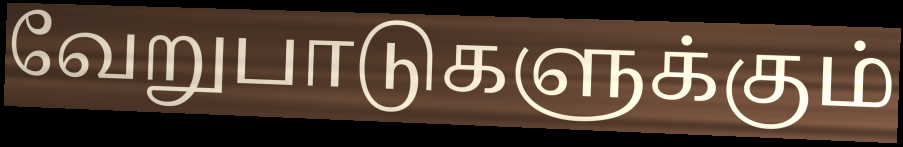
வேறுபாடுகளுக்கும்